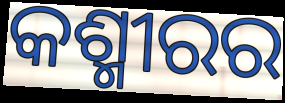
କଶ୍ମୀରର